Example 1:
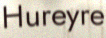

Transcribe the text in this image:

Hureyre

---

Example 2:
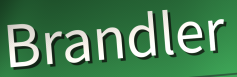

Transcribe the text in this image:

Brandler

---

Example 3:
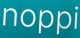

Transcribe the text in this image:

noppi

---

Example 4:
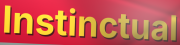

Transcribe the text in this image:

Instinctual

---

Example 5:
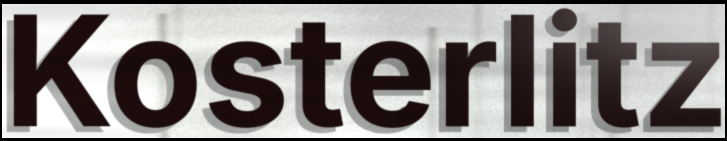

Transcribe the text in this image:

Kosterlitz